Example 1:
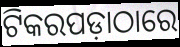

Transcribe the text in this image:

ଟିକରପଡ଼ାଠାରେ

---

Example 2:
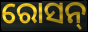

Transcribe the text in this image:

ରୋସନ୍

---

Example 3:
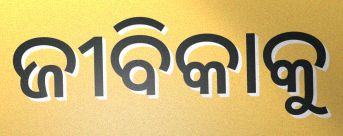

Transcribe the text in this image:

ଜୀବିକାକୁ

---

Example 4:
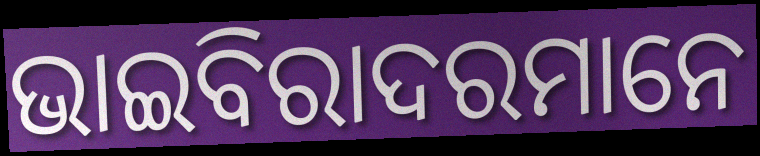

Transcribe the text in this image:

ଭାଇବିରାଦରମାନେ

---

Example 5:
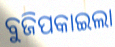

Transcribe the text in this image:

ବୁଜିପକାଇଲା